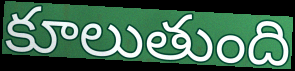
కూలుతుంది